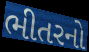
ભીતરનો